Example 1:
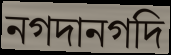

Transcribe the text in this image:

নগদানগদি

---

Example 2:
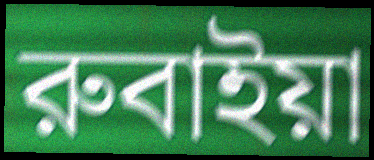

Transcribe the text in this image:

রুবাইয়া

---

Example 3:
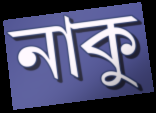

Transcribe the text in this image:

নাকু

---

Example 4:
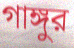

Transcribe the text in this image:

গাঙ্গুর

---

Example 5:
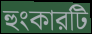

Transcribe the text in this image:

হুংকারটি